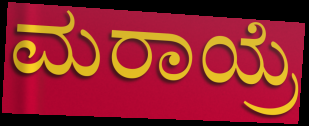
ಮರಾಯ್ರೆ